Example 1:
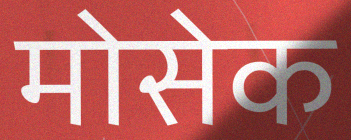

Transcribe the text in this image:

मोसेक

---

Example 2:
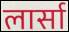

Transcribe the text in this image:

लार्सा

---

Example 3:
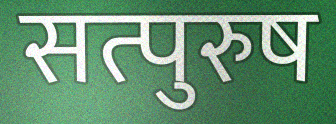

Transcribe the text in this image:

सत्पुरुष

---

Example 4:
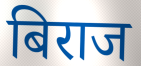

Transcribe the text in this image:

बिराज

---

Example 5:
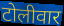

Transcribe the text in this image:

टोलीवार